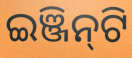
ଇଞ୍ଜିନ୍‌ଟି